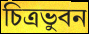
চিত্রভুবন